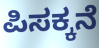
ಪಿಸಕ್ಕನೆ